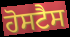
ਹੋਸਟੈਸ